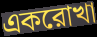
একরোখা